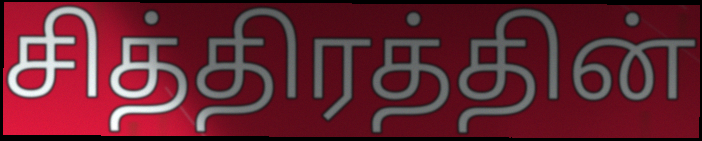
சித்திரத்தின்